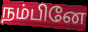
நம்பினே